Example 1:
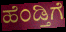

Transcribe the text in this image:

ಹೆಂಡ್ತಿಗೆ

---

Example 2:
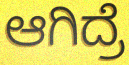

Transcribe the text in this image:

ಆಗಿದ್ರೆ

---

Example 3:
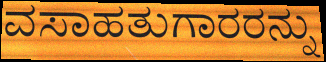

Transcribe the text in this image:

ವಸಾಹತುಗಾರರನ್ನು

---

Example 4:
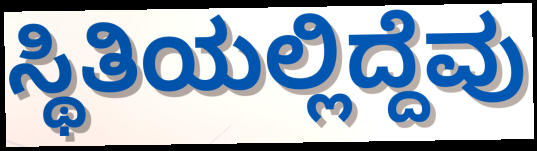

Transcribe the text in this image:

ಸ್ಥಿತಿಯಲ್ಲಿದ್ದೆವು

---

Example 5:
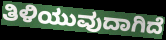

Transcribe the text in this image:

ತಿಳಿಯುವುದಾಗಿದೆ